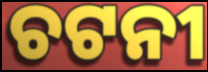
ଚଟନୀ